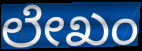
ಲೇಖಂ